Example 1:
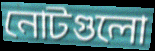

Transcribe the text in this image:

নোটগুলো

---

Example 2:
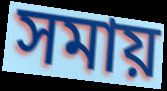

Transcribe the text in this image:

সমায়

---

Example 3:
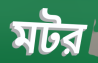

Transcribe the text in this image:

মটর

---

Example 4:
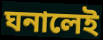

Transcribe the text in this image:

ঘনালেই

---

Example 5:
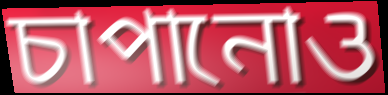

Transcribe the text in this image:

চাপানোও